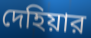
দেহিয়ার